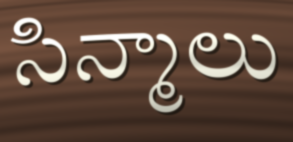
సిన్మాలు